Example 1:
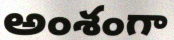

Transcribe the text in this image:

అంశంగా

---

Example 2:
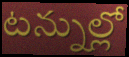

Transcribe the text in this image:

టన్నుల్లో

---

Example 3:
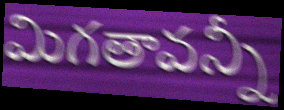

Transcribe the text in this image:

మిగతావన్నీ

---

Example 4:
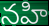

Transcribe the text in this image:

నహి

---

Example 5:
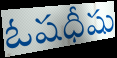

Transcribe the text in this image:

ఓషధీషు